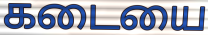
கடையை